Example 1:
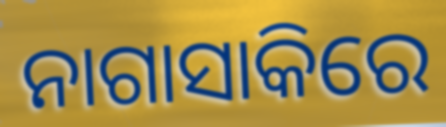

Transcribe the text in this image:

ନାଗାସାକିରେ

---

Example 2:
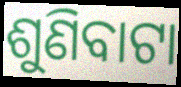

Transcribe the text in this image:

ଶୁଣିବାଟା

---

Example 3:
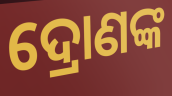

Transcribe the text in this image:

ଦ୍ରୋଣଙ୍କ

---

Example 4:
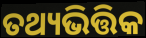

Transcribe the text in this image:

ତଥ୍ୟଭିତ୍ତିକ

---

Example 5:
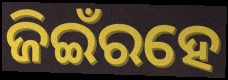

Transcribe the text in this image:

ଜିଇଁରହେ